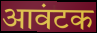
आवंटक